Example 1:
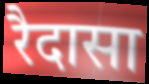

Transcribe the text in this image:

रैदासा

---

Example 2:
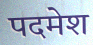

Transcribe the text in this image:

पदमेश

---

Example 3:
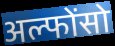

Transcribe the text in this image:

अल्फोंसो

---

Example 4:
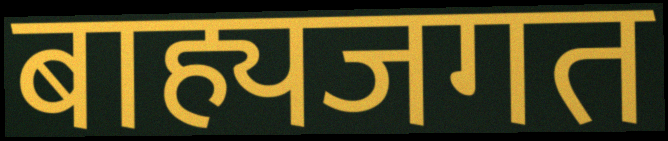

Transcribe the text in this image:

बाह्यजगत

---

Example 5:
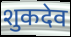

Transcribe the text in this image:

शुकदेव